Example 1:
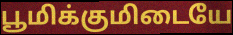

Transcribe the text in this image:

பூமிக்குமிடையே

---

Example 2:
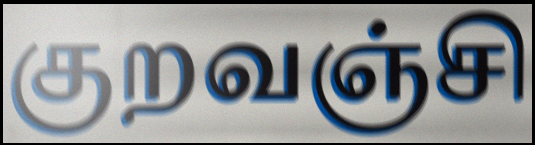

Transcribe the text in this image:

குறவஞ்சி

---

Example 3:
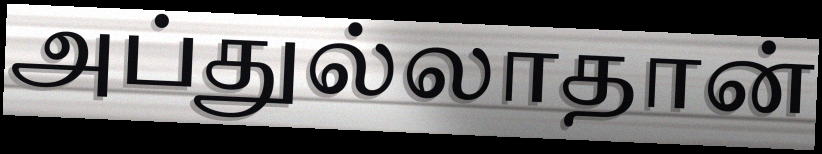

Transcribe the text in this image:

அப்துல்லாதான்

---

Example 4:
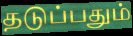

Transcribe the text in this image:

தடுப்பதும்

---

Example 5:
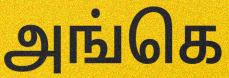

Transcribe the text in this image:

அங்கெ